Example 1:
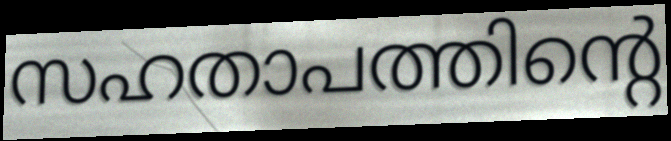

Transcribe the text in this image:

സഹതാപത്തിന്റെ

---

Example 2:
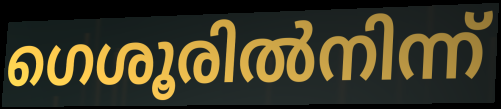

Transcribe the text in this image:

ഗെശൂരിൽനിന്ന്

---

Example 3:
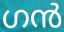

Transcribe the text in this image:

ഗൻ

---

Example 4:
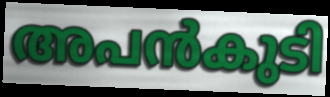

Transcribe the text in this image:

അപൻകുടി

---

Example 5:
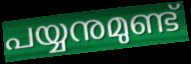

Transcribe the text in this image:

പയ്യനുമുണ്ട്